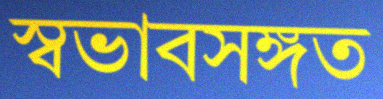
স্বভাবসঙ্গত